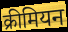
क्रीमियन